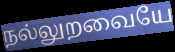
நல்லுறவையே